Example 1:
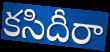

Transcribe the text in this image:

కసిదీరా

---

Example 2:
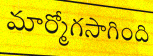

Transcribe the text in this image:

మార్మోగసాగింది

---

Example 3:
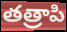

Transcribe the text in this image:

తత్రాపి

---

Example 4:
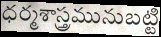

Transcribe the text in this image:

ధర్మశాస్త్రమునుబట్టి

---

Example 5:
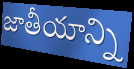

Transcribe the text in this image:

జాతీయాన్ని